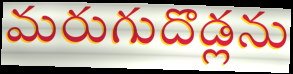
మరుగుదొడ్లను